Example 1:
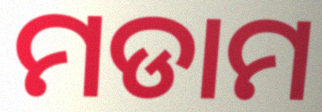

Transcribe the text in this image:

ମଡାମ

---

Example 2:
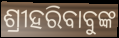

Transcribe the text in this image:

ଶ୍ରୀହରିବାବୁଙ୍କ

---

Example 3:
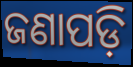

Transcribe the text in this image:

ଜଣାପଡ଼ି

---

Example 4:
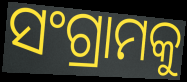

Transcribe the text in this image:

ସଂଗ୍ରାମକୁ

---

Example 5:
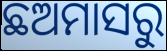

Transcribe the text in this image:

ଛଅମାସରୁ